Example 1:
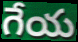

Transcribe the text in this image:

గేయ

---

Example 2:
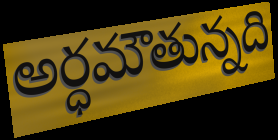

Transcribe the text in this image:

అర్ధమౌతున్నది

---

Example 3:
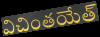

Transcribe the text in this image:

విచింతయేత్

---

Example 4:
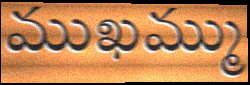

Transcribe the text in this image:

ముఖమ్ము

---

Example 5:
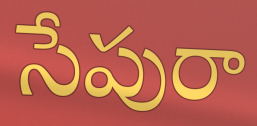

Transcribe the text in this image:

సేపురా